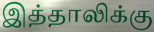
இத்தாலிக்கு